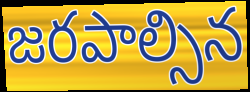
జరపాల్సిన